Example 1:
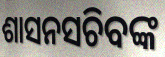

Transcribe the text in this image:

ଶାସନସଚିବଙ୍କ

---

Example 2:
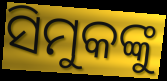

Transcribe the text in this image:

ସିମୁକଙ୍କୁ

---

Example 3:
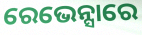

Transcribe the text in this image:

ରେଭେନ୍ସାରେ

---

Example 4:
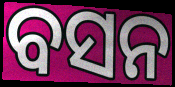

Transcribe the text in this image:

ବସନ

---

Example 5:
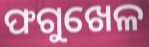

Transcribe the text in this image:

ଫଗୁଖେଳ